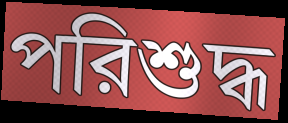
পরিশুদ্ধ